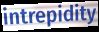
intrepidity